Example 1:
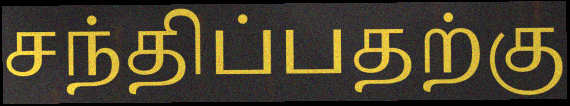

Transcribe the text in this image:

சந்திப்பதற்கு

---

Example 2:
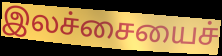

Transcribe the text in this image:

இலச்சையைச்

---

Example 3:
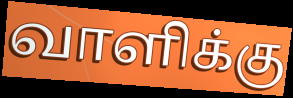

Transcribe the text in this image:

வாளிக்கு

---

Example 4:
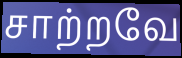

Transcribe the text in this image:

சாற்றவே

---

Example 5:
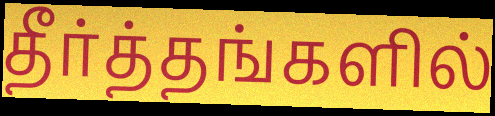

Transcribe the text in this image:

தீர்த்தங்களில்